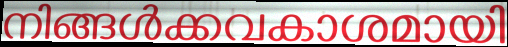
നിങ്ങൾക്കവകാശമായി